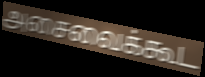
அசைவைக்கூட